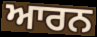
ਆਰਨ